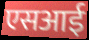
एसआई